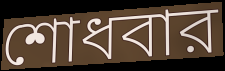
শোধবার